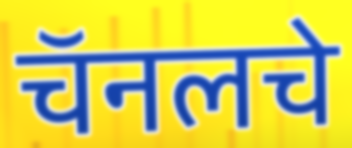
चॅनलचे